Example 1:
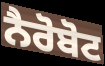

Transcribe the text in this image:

ਨੈਰੋਬੋਟ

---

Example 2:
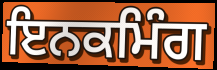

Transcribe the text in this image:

ਇਨਕਮਿੰਗ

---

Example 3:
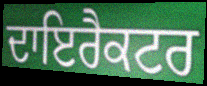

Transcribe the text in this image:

ਦਾਇਰੈਕਟਰ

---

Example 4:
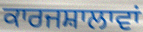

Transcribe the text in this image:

ਕਾਰਜਸ਼ਾਲਾਵਾਂ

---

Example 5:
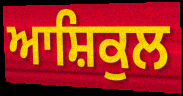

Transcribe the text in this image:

ਆਸ਼ਿਕੁਲ